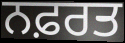
ਨਫ਼ਰਤ